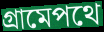
গ্রামেপথে